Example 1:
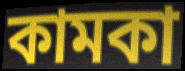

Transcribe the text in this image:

কামকা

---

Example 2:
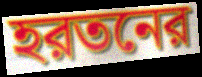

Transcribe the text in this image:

হরতনের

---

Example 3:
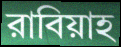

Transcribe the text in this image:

রাবিয়াহ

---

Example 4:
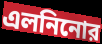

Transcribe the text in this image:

এলনিনোর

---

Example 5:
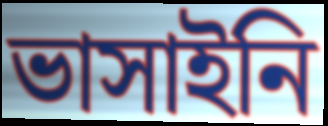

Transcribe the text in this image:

ভাসাইনি